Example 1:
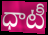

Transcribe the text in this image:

ధాటీ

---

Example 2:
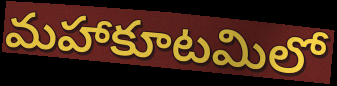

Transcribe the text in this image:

మహాకూటమిలో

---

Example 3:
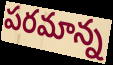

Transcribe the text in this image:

పరమాన్న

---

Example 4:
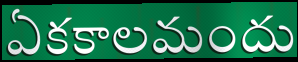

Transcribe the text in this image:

ఏకకాలమందు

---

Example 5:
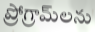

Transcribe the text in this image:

ప్రోగ్రామ్‌లను